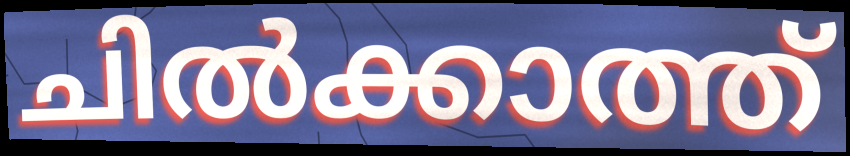
ചിൽക്കാത്ത്